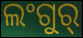
ଲଂଗୁର୍